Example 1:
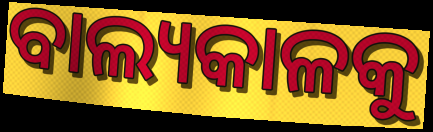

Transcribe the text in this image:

ବାଲ୍ୟକାଳକୁ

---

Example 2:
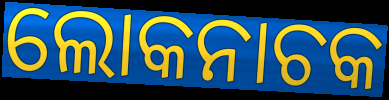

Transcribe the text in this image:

ଲୋକନାଚକ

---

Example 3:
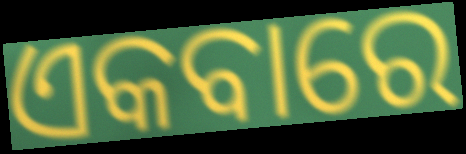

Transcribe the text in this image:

ଏକବାରେ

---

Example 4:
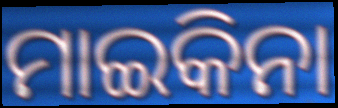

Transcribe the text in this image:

ମାଇକିନା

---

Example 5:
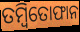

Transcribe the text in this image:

ତମ୍ବିତୋଫାନ